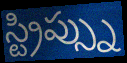
స్ట్రిప్స్ను